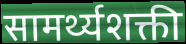
सामर्थ्यशक्ती